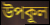
উপকূল